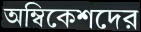
অম্বিকেশদের